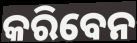
କରିବେନ